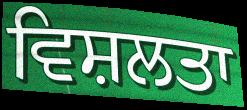
ਵਿਸ਼ਲਤਾ